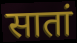
सातां